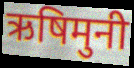
ऋषिमुनी